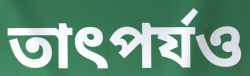
তাৎপর্যও